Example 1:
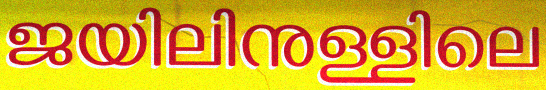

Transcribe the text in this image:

ജയിലിനുള്ളിലെ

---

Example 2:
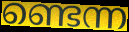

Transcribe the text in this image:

ണ്ടെന്ന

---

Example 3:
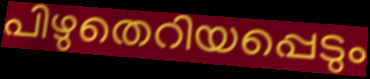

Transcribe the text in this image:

പിഴുതെറിയപ്പെടും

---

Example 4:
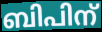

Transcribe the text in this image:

ബിപിന്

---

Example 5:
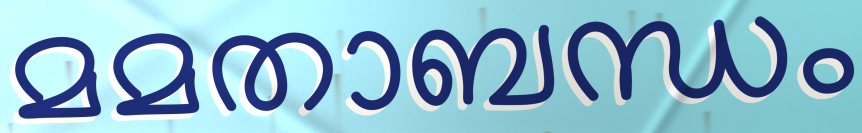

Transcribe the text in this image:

മമതാബന്ധം